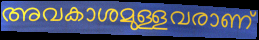
അവകാശമുള്ളവരാണ്